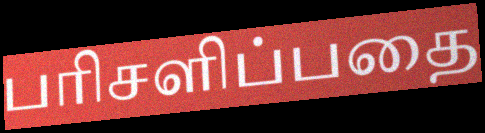
பரிசளிப்பதை